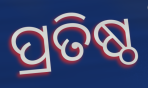
ପ୍ରତିଷ୍ଠ